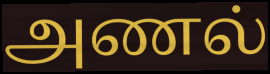
அணல்